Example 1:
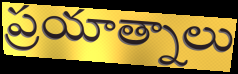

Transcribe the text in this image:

ప్రయాత్నాలు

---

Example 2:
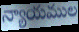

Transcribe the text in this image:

న్యాయముల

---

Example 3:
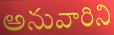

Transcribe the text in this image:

అనువారిని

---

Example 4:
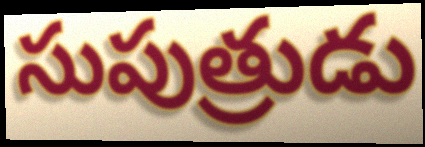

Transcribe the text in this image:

సుపుత్రుడు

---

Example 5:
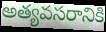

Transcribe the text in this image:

అత్యవసరానికి